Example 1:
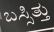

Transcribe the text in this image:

ಬಸ್ಸಿತ್ತು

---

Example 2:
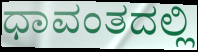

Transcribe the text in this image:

ಧಾವಂತದಲ್ಲಿ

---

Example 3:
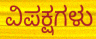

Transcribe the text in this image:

ವಿಪಕ್ಷಗಳು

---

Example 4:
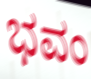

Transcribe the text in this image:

ಭವಂ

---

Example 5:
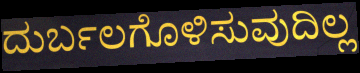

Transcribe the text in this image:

ದುರ್ಬಲಗೊಳಿಸುವುದಿಲ್ಲ